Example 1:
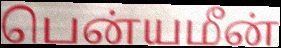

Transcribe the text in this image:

பென்யமீன்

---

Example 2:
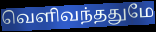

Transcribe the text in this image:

வெளிவந்ததுமே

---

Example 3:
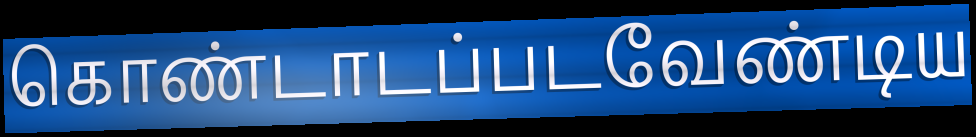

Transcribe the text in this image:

கொண்டாடப்படவேண்டிய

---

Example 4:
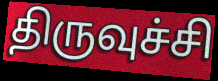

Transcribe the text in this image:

திருவுச்சி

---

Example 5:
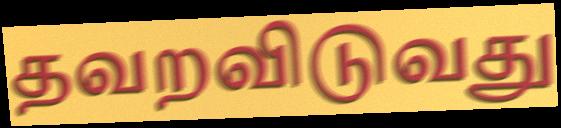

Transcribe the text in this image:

தவறவிடுவது